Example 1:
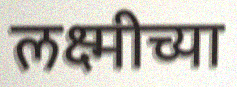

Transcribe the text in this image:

लक्ष्मीच्या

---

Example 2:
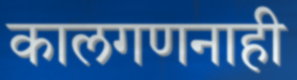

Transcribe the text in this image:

कालगणनाही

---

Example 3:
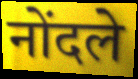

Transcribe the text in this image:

नोंदले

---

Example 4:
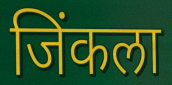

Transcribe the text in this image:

जिंकला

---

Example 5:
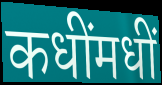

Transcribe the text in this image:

कधींमधीं